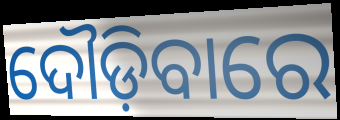
ଦୌଡ଼ିବାରେ